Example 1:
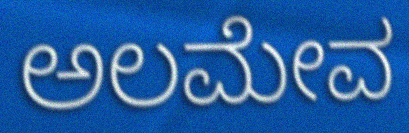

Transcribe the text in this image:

ಅಲಮೇವ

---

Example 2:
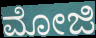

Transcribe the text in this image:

ಮೋಜಿ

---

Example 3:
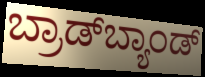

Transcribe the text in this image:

ಬ್ರಾಡ್‌ಬ್ಯಾಂಡ್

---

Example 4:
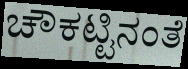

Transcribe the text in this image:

ಚೌಕಟ್ಟಿನಂತೆ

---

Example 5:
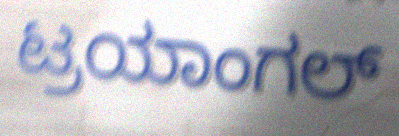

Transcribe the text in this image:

ಟ್ರಯಾಂಗಲ್